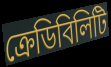
ক্রেডিবিলিটি